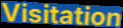
Visitation